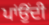
ਪਾਂਉਂਦੀ